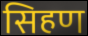
सिहण